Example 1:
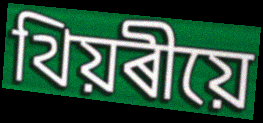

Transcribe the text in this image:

থিয়ৰীয়ে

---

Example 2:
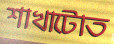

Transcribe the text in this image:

শাখাটোত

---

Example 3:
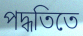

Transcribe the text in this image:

পদ্ধতিতে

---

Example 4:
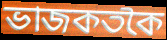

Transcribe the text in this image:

ভাজকতকৈ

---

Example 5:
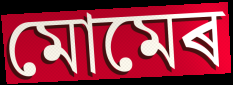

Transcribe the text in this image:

মোমেৰ